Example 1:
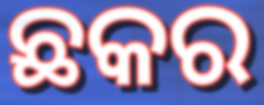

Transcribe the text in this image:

ଛକର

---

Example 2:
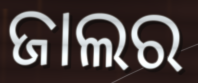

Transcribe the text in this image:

ଜାଲର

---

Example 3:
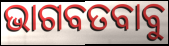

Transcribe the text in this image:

ଭାଗବତବାବୁ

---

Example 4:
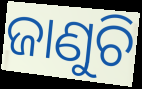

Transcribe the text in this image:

ଜାଣୁଚି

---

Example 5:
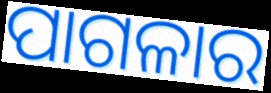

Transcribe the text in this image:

ପାଗଳାର